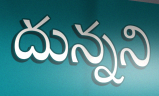
దున్నని